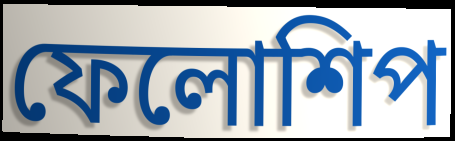
ফেলোশিপ